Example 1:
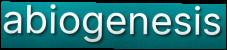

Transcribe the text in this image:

abiogenesis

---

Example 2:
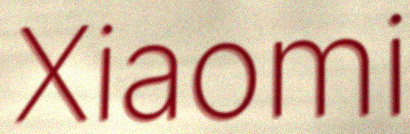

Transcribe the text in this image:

Xiaomi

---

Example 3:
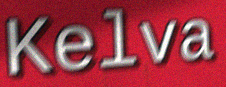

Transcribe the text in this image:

Kelva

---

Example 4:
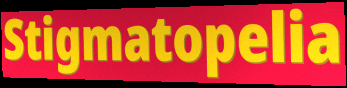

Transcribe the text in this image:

Stigmatopelia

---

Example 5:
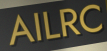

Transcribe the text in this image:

AILRC